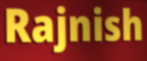
Rajnish